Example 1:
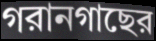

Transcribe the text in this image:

গরানগাছের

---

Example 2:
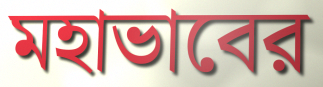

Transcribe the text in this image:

মহাভাবের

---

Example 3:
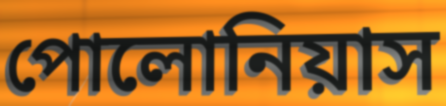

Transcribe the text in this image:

পোলোনিয়াস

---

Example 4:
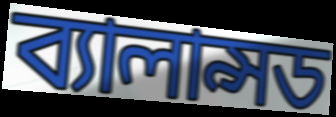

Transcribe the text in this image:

ব্যালান্সড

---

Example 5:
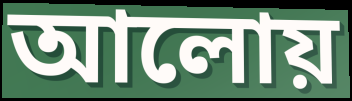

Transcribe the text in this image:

আলোয়